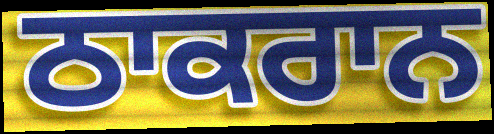
ਠਾਕਰਾਨ